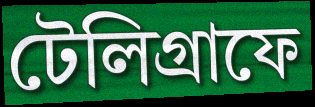
টেলিগ্রাফে